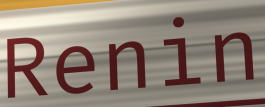
Renin